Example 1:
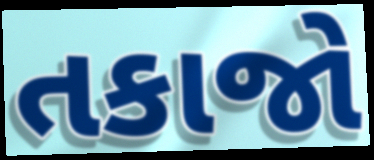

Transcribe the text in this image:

તકાજો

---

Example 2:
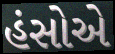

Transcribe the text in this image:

હંસોએ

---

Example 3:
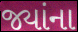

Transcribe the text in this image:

જ્યાંના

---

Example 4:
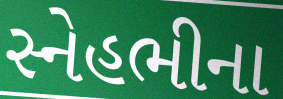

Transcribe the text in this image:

સ્નેહભીના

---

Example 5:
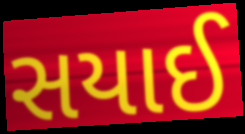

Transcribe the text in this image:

સયાઈ